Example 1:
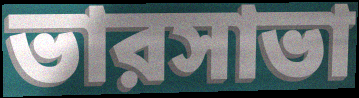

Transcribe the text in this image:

ভারসাভা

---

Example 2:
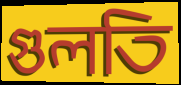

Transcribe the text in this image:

গুলতি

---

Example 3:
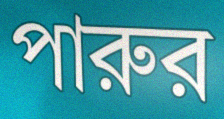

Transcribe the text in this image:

পারুর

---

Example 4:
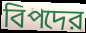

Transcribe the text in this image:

বিপদের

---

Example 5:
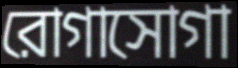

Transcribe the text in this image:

রোগাসোগা